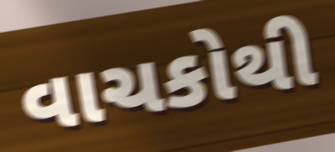
વાચકોથી